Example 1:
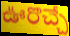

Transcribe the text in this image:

ఊరొచ్చే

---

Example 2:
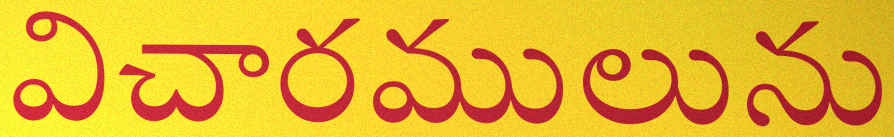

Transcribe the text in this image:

విచారములును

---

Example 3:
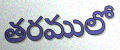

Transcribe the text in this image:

తరములో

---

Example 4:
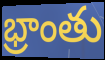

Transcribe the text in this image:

భ్రాంతు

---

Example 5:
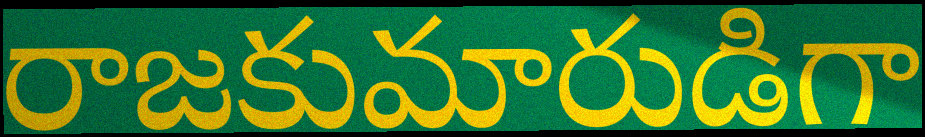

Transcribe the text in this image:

రాజకుమారుడిగా